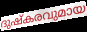
ദുഷ്കരവുമായ